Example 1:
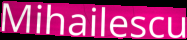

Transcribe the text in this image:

Mihailescu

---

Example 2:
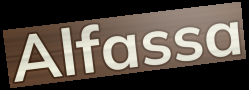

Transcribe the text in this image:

Alfassa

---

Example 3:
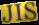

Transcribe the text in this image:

JIS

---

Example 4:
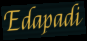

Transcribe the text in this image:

Edapadi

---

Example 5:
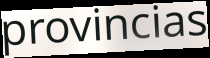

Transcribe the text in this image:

provincias